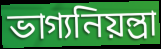
ভাগ্যনিয়ন্ত্রা